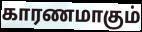
காரணமாகும்